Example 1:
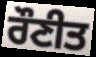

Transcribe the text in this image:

ਰੌਣੀਤ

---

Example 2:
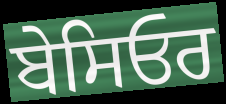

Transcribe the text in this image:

ਬੇਸਿਓਰ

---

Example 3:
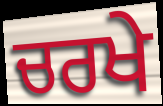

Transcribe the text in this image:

ਚਰਖੇ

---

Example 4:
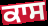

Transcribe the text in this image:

ਕਾਸ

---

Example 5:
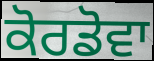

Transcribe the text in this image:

ਕੋਰਡੋਵਾ